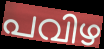
പവിഴ